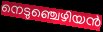
നെടുഞ്ചെഴിയൻ